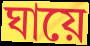
ঘায়ে